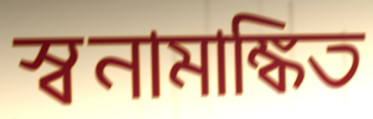
স্বনামাঙ্কিত